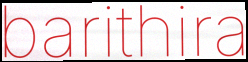
barithira